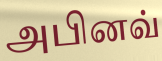
அபினவ்